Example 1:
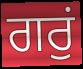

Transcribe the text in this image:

ਗਰੁਂ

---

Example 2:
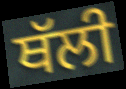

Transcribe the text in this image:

ਥੱਲੀ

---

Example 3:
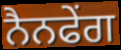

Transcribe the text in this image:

ਨੈਨਫੇਂਗ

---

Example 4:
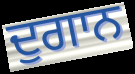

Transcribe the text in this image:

ਦੁਗਾਨ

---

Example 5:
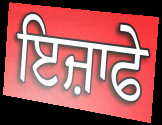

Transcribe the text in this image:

ਇਜ਼ਾਫੇ